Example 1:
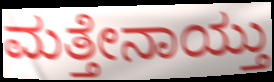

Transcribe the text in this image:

ಮತ್ತೇನಾಯ್ತು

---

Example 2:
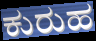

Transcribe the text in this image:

ಕುರುಹ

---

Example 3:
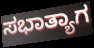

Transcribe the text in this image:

ಸಭಾತ್ಯಾಗ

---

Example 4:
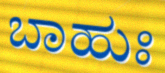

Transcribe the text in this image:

ಬಾಹುಃ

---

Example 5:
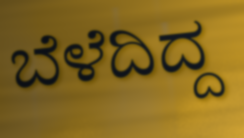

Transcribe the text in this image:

ಬೆಳೆದಿದ್ದ